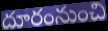
దూరంనుంచి